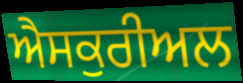
ਐਸਕੁਰੀਅਲ